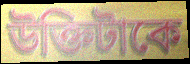
উক্তিটাকে